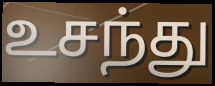
உசந்து